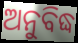
ଅନୁବିଦ୍ଧ